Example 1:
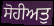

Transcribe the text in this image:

ਸੋਹੀਅਤੁ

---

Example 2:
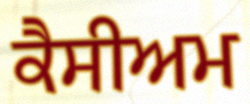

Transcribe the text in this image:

ਕੈਸੀਅਮ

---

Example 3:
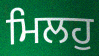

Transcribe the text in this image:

ਮਿਲਹੁ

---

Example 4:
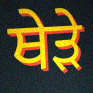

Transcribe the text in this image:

ਥੇੜੇ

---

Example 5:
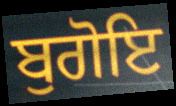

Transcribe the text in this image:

ਬੁਗੋਇ